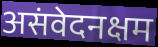
असंवेदनक्षम